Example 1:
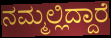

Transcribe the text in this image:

ನಮ್ಮಲ್ಲಿದ್ದಾರೆ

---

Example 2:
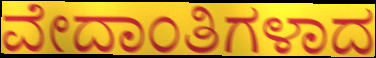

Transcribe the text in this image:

ವೇದಾಂತಿಗಳಾದ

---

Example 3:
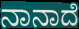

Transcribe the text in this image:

ನಾನಾದೆ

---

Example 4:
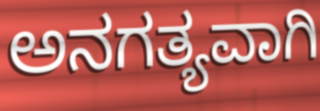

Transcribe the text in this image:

ಅನಗತ್ಯವಾಗಿ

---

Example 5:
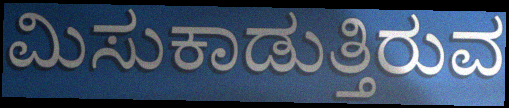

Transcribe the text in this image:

ಮಿಸುಕಾಡುತ್ತಿರುವ